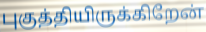
புகுத்தியிருக்கிறேன்